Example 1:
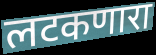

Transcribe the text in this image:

लटकणारा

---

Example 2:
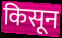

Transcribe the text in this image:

किसून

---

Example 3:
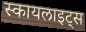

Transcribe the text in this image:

स्कायलाइट्स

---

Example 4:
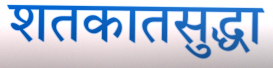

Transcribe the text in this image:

शतकातसुद्धा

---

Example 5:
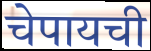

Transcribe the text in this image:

चेपायची